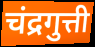
चंद्रगुत्ती